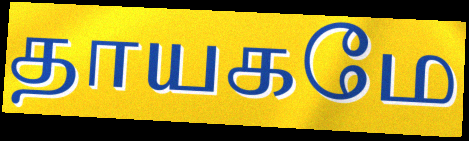
தாயகமே